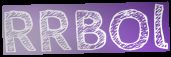
RRBOl